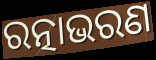
ରତ୍ନାଭରଣ